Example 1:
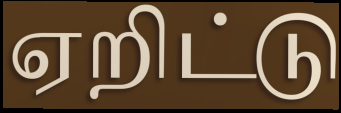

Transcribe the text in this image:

ஏறிட்டு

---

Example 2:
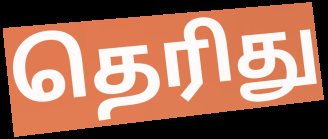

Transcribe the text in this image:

தெரிது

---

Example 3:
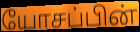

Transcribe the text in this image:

யோசப்பின்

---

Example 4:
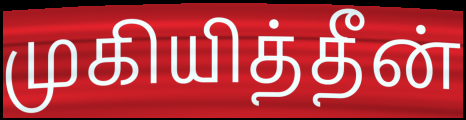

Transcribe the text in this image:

முகியித்தீன்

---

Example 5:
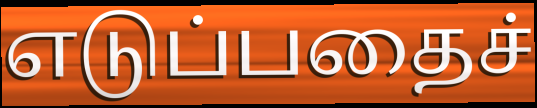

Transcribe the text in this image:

எடுப்பதைச்